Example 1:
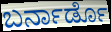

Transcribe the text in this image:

ಬರ್ನಾರ್ಡೊ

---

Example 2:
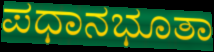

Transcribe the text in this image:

ಪಧಾನಭೂತಾ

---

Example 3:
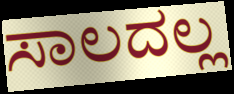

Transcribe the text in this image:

ಸಾಲದಲ್ಲ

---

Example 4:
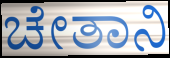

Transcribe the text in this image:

ಚೇತಾನಿ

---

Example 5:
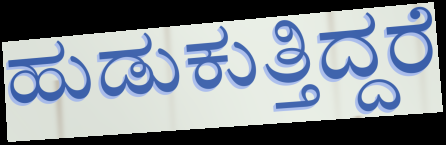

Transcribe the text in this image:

ಹುಡುಕುತ್ತಿದ್ದರೆ